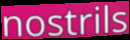
nostrils